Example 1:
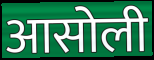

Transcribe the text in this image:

आसोली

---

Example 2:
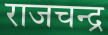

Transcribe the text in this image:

राजचन्द्र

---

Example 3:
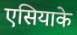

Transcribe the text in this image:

एसियाके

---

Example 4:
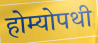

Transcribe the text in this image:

होम्योपथी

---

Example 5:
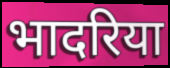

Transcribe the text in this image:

भादरिया